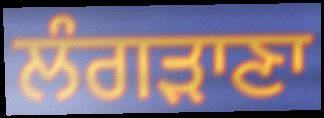
ਲੰਗੜਾਣਾ